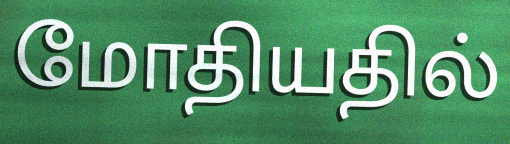
மோதியதில்